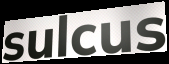
sulcus